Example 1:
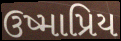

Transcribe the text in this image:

ઉષ્માપ્રિય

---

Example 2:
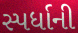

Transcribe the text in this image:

સ્પર્ધાની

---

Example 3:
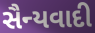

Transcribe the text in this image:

સૈન્યવાદી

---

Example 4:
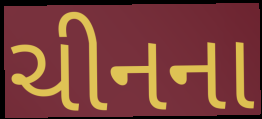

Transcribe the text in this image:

ચીનના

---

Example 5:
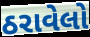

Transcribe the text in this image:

ઠરાવેલો